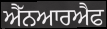
ਐੱਨਆਰਐਫ